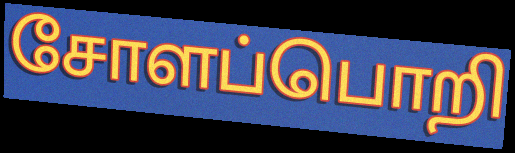
சோளப்பொறி